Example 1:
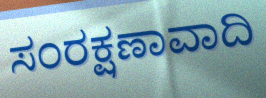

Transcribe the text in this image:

ಸಂರಕ್ಷಣಾವಾದಿ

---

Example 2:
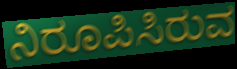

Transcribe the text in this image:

ನಿರೂಪಿಸಿರುವ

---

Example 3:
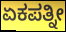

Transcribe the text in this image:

ಏಕಪತ್ನೀ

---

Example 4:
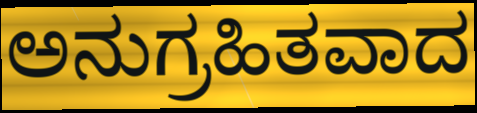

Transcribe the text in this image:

ಅನುಗ್ರಹಿತವಾದ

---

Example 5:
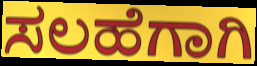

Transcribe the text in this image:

ಸಲಹೆಗಾಗಿ